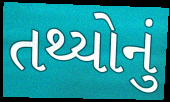
તથ્યોનું